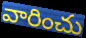
వారించు